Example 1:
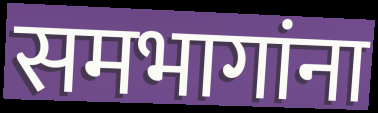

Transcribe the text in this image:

समभागांना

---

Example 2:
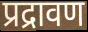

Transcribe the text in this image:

प्रद्रावण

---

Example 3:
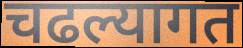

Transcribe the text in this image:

चढल्यागत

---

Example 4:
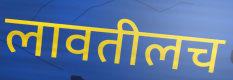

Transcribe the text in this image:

लावतीलच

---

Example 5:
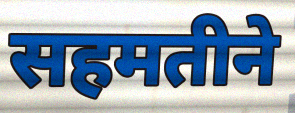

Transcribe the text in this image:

सहमतीने